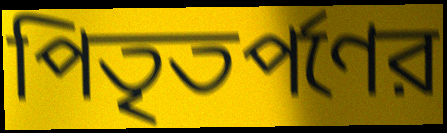
পিতৃতর্পণের